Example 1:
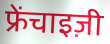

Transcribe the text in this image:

फ्रेंचाइज़ी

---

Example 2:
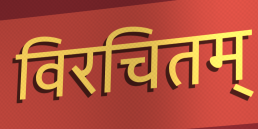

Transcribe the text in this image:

विरचितम्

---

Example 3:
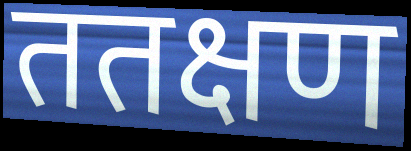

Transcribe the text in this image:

ततक्षण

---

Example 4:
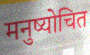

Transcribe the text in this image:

मनुष्योचित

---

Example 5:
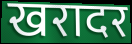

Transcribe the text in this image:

खरादर